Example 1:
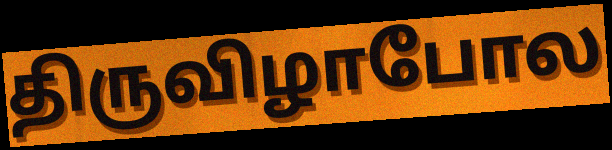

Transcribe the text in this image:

திருவிழாபோல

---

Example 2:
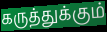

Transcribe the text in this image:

கருத்துக்கும்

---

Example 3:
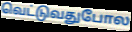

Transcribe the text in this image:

வெட்டுவதுபோல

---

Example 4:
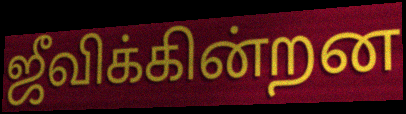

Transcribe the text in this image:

ஜீவிக்கின்றன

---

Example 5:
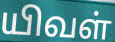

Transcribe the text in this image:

யிவள்